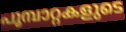
പൂമ്പാറ്റകളുടെ